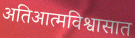
अतिआत्मविश्वासात